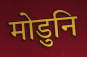
मोडुनि